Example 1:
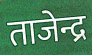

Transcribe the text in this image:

ताजेन्द्र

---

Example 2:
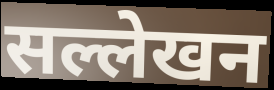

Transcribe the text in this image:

सल्लेखन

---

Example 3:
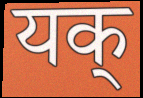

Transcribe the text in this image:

यक्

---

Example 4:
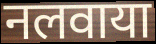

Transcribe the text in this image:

नलवाया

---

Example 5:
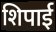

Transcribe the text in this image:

शिपाई